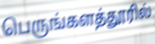
பெருங்களத்தூரில்